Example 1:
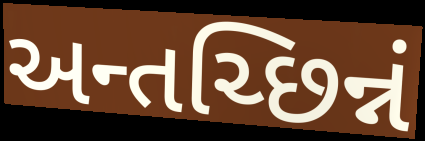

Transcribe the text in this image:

અન્તચ્છિન્નં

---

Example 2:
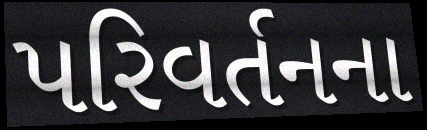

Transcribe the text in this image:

પરિવર્તનના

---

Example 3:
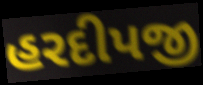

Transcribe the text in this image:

હરદીપજી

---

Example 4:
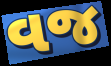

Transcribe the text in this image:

વજ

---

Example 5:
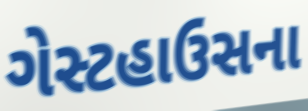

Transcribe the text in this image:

ગેસ્ટહાઉસના